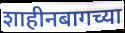
शाहीनबागच्या